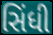
સિંધી